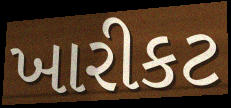
ખારીકટ